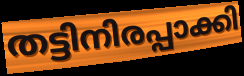
തട്ടിനിരപ്പാക്കി